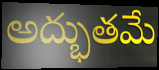
అద్భుతమే